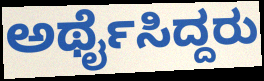
ಅರ್ಥೈಸಿದ್ದರು